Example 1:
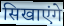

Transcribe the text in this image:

सिखाएंगे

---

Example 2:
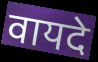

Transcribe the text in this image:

वायदे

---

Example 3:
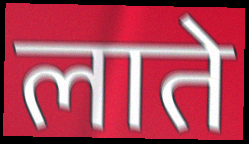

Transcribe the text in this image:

लाते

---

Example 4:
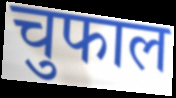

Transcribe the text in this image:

चुफाल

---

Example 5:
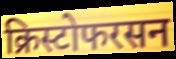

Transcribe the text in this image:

क्रिस्टोफरसन